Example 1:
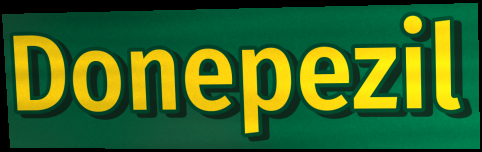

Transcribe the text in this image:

Donepezil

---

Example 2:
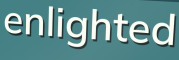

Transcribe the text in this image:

enlighted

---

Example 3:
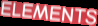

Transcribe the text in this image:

ELEMENTS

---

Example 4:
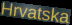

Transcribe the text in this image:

Hrvatska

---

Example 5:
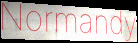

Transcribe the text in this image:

Normandy